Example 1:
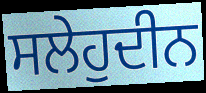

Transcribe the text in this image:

ਸਲੇਹੁਦੀਨ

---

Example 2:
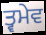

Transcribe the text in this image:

ਤ੍ਵਮੇਵ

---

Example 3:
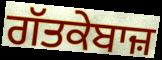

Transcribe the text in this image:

ਗੱਤਕੇਬਾਜ਼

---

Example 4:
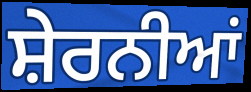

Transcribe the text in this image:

ਸ਼ੇਰਨੀਆਂ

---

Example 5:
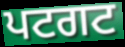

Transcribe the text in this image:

ਪਟਗਟ